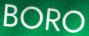
BORO